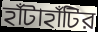
হাঁটাহাঁটির